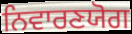
ਨਿਵਾਰਣਯੋਗ